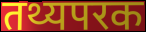
तथ्यपरक